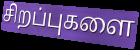
சிறப்புகளை